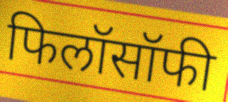
फिलॉसॉफी